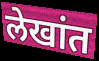
लेखांत